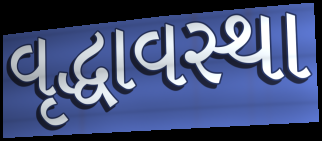
વૃદ્ધાવસ્થા